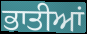
ਭਾਤੀਆਂ